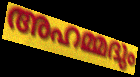
അഹമ്മദും